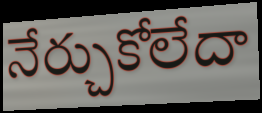
నేర్చుకోలేదా